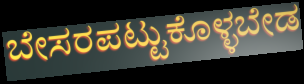
ಬೇಸರಪಟ್ಟುಕೊಳ್ಳಬೇಡ